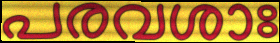
പരവശാഃ